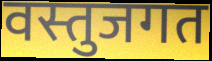
वस्तुजगत